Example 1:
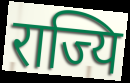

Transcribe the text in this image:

राज्यि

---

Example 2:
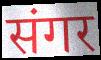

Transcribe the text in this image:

संगर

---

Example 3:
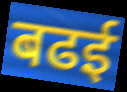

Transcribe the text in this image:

बढई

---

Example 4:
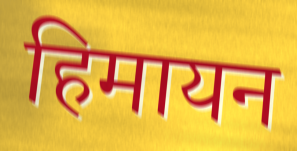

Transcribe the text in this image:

हिमायन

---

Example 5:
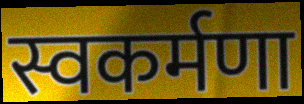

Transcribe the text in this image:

स्वकर्मणा